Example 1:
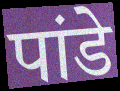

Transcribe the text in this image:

पांडे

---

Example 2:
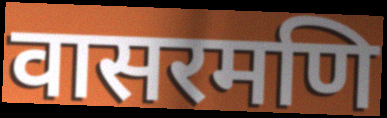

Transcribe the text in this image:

वासरमणि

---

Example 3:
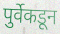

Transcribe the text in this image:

पुर्वेकडून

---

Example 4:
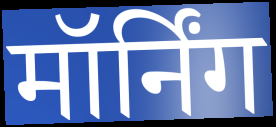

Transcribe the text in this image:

मॉर्निंग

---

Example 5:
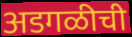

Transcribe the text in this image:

अडगळीची